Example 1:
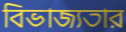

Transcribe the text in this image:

বিভাজ্যতার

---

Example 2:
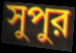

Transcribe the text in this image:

সুপুর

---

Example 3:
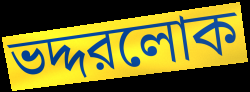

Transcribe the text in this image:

ভদ্দরলোক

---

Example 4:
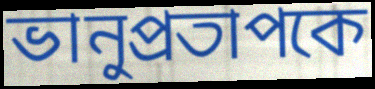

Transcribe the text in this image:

ভানুপ্রতাপকে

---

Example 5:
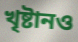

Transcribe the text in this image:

খৃষ্টানও